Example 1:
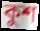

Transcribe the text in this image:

কুশ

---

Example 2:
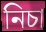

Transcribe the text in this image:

নিচা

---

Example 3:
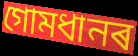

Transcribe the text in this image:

গোমধানৰ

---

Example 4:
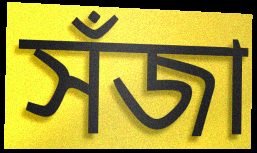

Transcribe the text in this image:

সঁজা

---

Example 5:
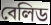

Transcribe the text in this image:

বেলিড